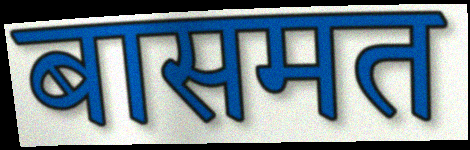
बासमत